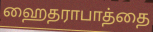
ஹைதராபாத்தை